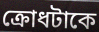
ক্রোধটাকে